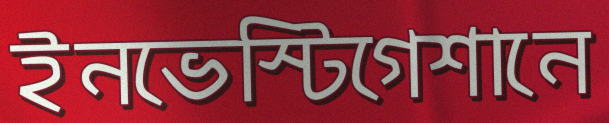
ইনভেস্টিগেশানে